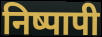
निष्पापी